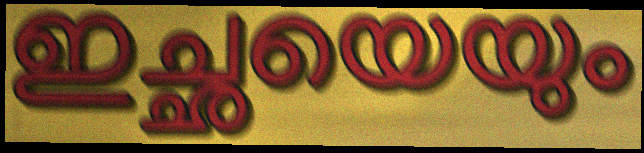
ഇച്ഛയെയും